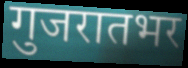
गुजरातभर